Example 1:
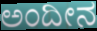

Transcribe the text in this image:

ಅಂದೀನ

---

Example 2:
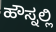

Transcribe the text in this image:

ಹೌಸ್ನಲ್ಲಿ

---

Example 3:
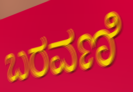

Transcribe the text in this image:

ಬರವಣಿ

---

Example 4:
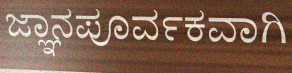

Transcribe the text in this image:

ಜ್ಞಾನಪೂರ್ವಕವಾಗಿ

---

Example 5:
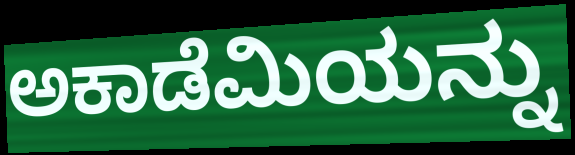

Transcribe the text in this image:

ಅಕಾಡೆಮಿಯನ್ನು